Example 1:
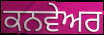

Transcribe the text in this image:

ਕਨਵੇਅਰ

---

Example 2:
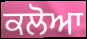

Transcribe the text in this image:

ਕਲੋਆ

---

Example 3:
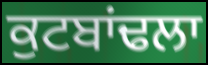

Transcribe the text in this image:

ਕੁਟਬਾਂਢਲਾ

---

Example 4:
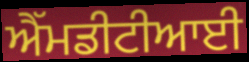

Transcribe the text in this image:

ਐੱਮਡੀਟੀਆਈ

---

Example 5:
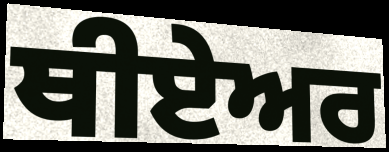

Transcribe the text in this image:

ਥੀਏਅਰ